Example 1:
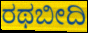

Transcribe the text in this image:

ರಥಬೀದಿ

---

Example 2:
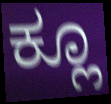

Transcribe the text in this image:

ಕ್ಲೂ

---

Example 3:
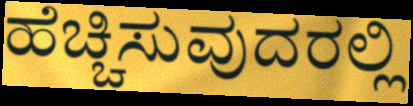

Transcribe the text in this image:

ಹೆಚ್ಚಿಸುವುದರಲ್ಲಿ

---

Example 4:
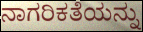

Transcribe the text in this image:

ನಾಗರಿಕತೆಯನ್ನು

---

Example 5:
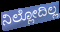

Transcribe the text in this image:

ನಿಲ್ಲೋದಿಲ್ಲ